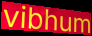
vibhum